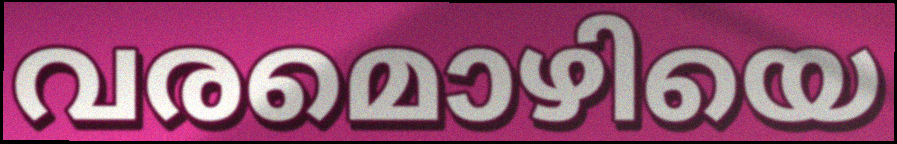
വരമൊഴിയെ